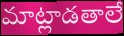
మాట్లాడతాలే